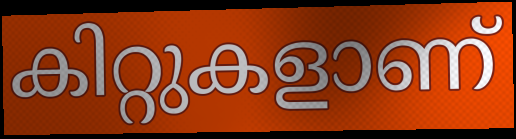
കിറ്റുകളാണ്